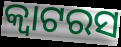
କ୍ୱାଟରସ